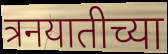
त्रनयातीच्या